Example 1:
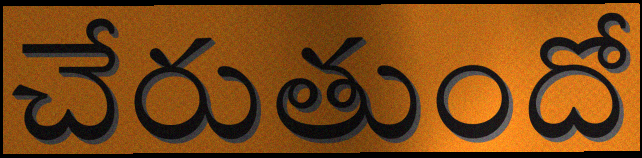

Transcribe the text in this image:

చేరుతుందో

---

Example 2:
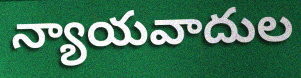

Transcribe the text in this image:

న్యాయవాదుల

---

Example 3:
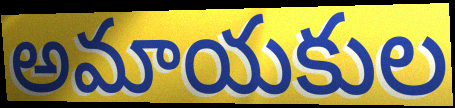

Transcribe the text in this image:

అమాయకుల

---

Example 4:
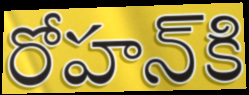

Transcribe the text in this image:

రోహన్‌కి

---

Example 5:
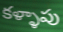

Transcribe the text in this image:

కళ్ళాపు